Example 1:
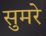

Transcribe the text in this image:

सुमरे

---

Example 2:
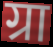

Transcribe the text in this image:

ग्रा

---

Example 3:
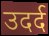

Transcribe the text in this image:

उदर्द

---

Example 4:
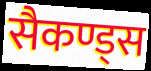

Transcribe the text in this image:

सैकण्ड्स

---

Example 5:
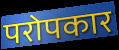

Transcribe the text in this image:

परोपकार